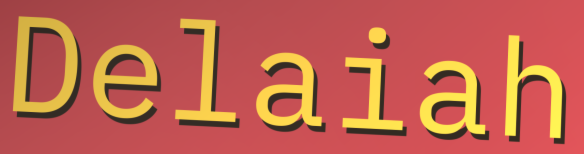
Delaiah